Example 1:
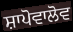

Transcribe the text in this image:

ਸ਼ਾਪੋਵਾਲੋਵ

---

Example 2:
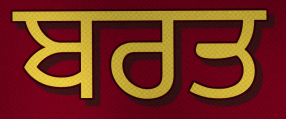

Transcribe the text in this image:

ਬਰਤ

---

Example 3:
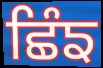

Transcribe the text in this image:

ਛਿੰਙ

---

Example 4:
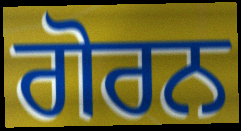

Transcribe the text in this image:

ਗੋਰਨ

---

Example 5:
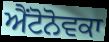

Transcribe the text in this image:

ਐਂਟੋਨੋਵਕਾ